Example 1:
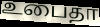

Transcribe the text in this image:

உபைதா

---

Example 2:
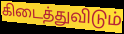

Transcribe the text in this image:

கிடைத்துவிடும்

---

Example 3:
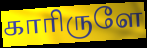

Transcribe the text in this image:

காரிருளே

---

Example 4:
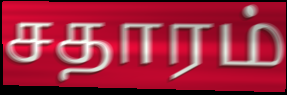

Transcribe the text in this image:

சதாரம்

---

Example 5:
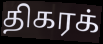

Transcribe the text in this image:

திகரக்